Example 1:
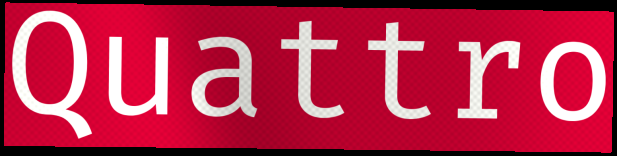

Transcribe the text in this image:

Quattro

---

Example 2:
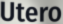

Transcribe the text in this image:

Utero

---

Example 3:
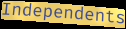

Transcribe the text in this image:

Independents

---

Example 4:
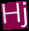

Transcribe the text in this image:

Hj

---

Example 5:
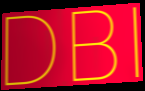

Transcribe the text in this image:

DBI